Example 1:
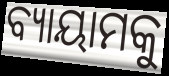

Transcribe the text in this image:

ବ୍ୟାୟାମକୁ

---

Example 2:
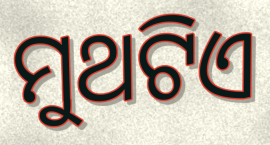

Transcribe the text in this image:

ମୁଥଟିଏ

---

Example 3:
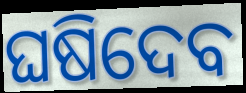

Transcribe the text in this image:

ଘଷିଦେବ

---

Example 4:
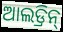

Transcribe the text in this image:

ଆଲଡ୍ରିନ୍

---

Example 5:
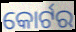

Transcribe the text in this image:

କୋର୍ଟର